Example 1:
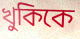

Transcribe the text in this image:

খুকিকে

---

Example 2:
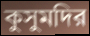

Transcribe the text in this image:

কুসুমদির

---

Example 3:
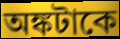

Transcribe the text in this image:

অঙ্কটাকে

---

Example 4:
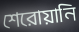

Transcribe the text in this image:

শেরোয়ানি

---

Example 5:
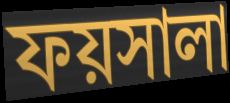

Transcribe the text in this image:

ফয়সালা